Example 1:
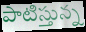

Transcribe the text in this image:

పాటిస్తున్న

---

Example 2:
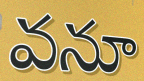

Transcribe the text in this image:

వనూ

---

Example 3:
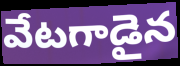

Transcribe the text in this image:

వేటగాడైన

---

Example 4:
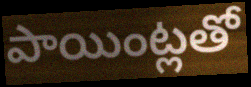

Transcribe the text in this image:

పాయింట్లతో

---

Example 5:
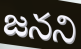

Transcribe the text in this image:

జనని